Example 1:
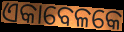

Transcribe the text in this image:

ଏକାବେଳକେ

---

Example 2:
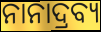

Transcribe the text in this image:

ନାନାଦ୍ରବ୍ୟ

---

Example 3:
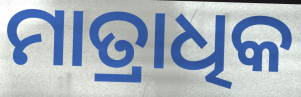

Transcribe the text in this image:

ମାତ୍ରାଧିକ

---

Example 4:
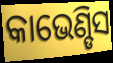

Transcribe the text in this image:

କାଭେଣ୍ଡିସ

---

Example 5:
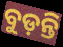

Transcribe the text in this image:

ବୁଡ଼ନ୍ତି